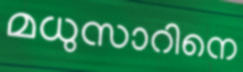
മധുസാറിനെ